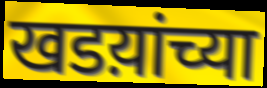
खडय़ांच्या